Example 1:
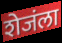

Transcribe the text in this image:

शेजंला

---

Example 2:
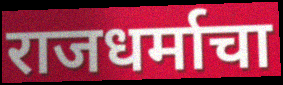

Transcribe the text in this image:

राजधर्माचा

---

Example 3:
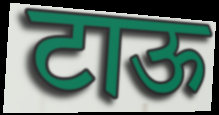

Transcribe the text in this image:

टाऊ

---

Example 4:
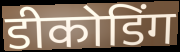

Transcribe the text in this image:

डीकोडिंग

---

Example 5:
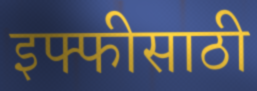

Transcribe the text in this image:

इफ्फीसाठी